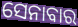
ସେନାବାର